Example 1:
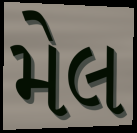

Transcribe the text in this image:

મેલ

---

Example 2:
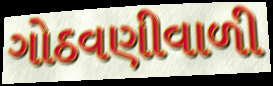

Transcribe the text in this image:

ગોઠવણીવાળી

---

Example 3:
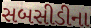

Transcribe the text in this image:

સબસીડીના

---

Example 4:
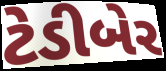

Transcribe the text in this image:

ટેડીબેર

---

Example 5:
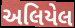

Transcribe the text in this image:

અલિયેલ